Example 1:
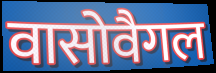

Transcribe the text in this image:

वासोवैगल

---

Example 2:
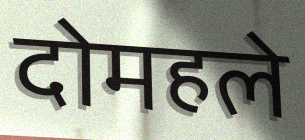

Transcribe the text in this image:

दोमहले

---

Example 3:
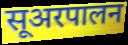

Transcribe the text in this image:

सूअरपालन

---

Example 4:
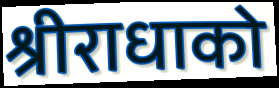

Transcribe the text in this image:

श्रीराधाको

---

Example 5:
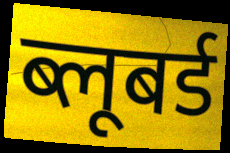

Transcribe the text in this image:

ब्लूबर्ड